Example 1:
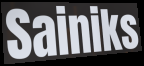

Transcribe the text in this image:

Sainiks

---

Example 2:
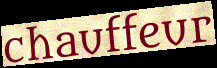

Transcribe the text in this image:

chauffeur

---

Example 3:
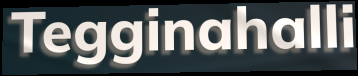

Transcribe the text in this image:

Tegginahalli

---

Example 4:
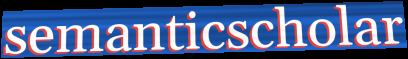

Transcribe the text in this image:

semanticscholar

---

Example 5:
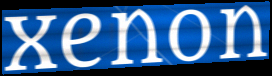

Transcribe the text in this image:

xenon